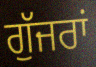
ਗੁੱਜਰਾਂ